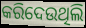
କରିଦେଉଥିଲି